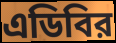
এডিবির